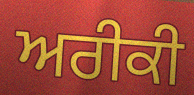
ਅਰੀਕੀ